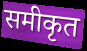
समीकृत